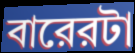
বারেরটা